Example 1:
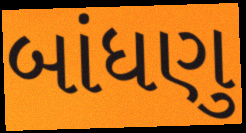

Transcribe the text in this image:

બાંધણુ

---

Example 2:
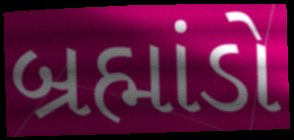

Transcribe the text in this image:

બ્રહ્માંડો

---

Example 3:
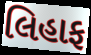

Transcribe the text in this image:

લિહાફ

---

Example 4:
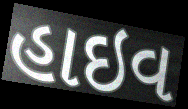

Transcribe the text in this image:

હાઇવ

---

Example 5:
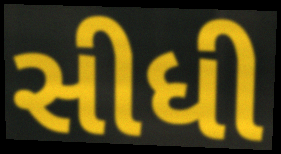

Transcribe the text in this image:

સીધી